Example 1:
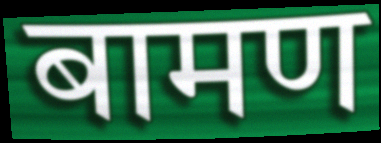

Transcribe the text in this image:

बामण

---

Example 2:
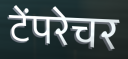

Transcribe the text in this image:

टेंपरेचर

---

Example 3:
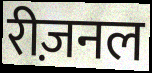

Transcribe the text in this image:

रीज़नल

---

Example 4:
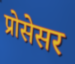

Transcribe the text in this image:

प्रोसेसर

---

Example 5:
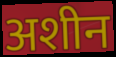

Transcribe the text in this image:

अशीन